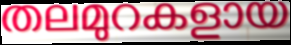
തലമുറകളായ